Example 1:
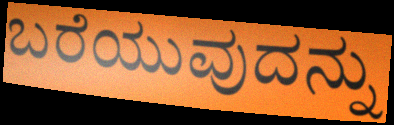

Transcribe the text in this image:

ಬರೆಯುವುದನ್ನು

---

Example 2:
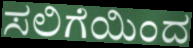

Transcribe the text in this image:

ಸಲಿಗೆಯಿಂದ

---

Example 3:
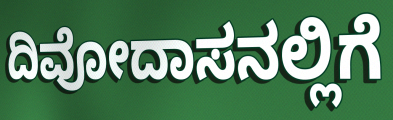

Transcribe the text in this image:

ದಿವೋದಾಸನಲ್ಲಿಗೆ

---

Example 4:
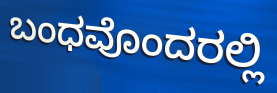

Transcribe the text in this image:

ಬಂಧವೊಂದರಲ್ಲಿ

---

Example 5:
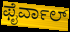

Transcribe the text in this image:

ಫೈರ್ವಾಲ್